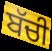
ਬੱਚੀ